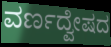
ವರ್ಣದ್ವೇಷದ